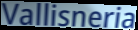
Vallisneria